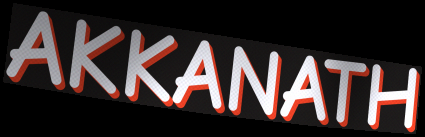
AKKANATH